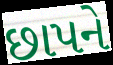
છાપને